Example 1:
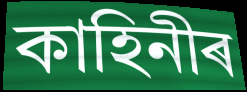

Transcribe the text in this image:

কাহিনীৰ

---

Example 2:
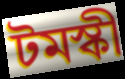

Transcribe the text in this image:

টমস্কী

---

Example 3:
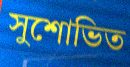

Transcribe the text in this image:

সুশোভিত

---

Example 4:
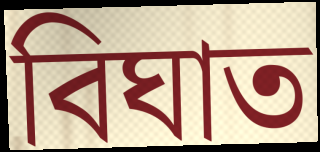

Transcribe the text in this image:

বিঘাত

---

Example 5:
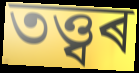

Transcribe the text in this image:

তত্ত্বৰ